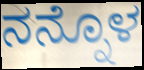
ನನ್ನೊಳ